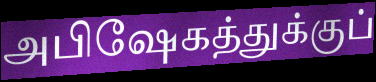
அபிஷேகத்துக்குப்